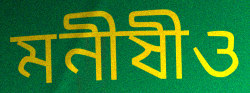
মনীষীও